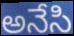
అనేసి